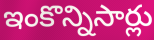
ఇంకొన్నిసార్లు